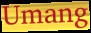
Umang